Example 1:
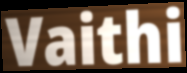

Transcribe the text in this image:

Vaithi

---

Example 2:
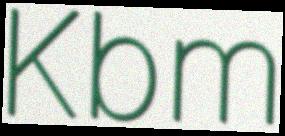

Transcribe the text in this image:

Kbm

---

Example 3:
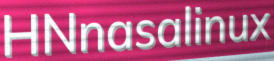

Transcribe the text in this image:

HNnasalinux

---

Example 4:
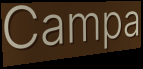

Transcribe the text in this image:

Campa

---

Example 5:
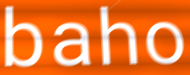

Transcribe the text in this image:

baho